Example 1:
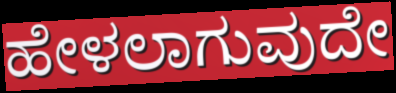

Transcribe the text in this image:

ಹೇಳಲಾಗುವುದೇ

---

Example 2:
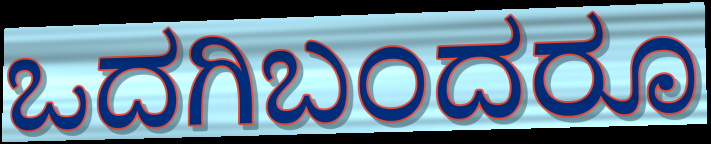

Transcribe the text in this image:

ಒದಗಿಬಂದರೂ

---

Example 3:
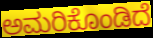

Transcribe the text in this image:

ಅಮರಿಕೊಂಡಿದೆ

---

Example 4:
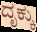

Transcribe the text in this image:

ದೃಕ್ಕು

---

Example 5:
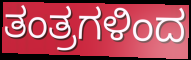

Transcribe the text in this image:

ತಂತ್ರಗಳಿಂದ